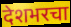
देशभरचा